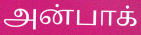
அன்பாக்